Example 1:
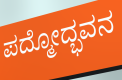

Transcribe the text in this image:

ಪದ್ಮೋದ್ಭವನ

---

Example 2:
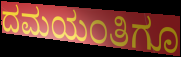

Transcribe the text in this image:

ದಮಯಂತಿಗೂ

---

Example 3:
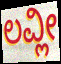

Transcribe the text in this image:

ಲವ್ಲೀ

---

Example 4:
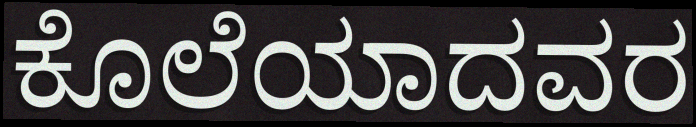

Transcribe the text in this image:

ಕೊಲೆಯಾದವರ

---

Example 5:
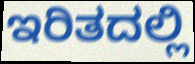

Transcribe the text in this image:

ಇರಿತದಲ್ಲಿ